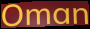
Oman